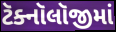
ટૅક્નૉલૉજીમાં